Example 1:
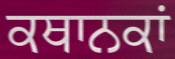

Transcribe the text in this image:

ਕਥਾਨਕਾਂ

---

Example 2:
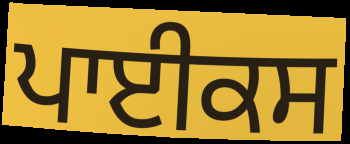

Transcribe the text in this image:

ਪਾਈਕਸ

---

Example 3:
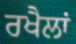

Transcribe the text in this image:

ਰਖੈਲਾਂ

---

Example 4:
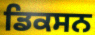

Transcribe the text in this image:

ਡਿਕਸਨ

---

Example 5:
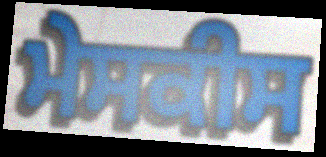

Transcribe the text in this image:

ਮੇਸਕੀਸ